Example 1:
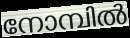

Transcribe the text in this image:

നോമ്പിൽ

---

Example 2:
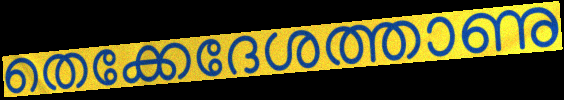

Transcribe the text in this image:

തെക്കേദേശത്താണു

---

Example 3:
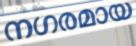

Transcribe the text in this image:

നഗരമായ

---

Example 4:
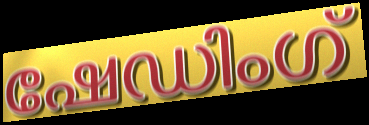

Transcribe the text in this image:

ഷേഡിംഗ്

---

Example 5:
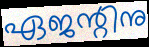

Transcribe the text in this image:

ഏജന്റിനു